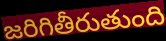
జరిగితీరుతుంది